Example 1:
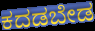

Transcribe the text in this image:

ಕದಡಬೇಡ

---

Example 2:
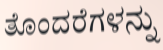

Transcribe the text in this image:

ತೊಂದರೆಗಳನ್ನು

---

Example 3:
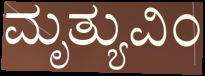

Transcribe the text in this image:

ಮೃತ್ಯುವಿಂ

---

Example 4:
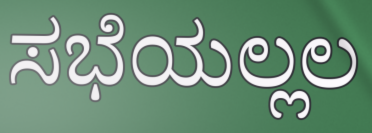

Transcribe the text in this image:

ಸಭೆಯಲ್ಲಲ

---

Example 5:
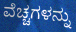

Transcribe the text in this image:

ವೆಚ್ಚಗಳನ್ನು